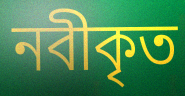
নবীকৃত